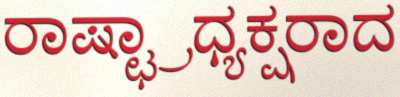
ರಾಷ್ಟ್ರಾಧ್ಯಕ್ಷರಾದ